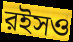
রইসও